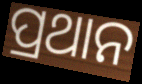
ପ୍ରଥାନ